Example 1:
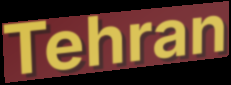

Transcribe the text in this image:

Tehran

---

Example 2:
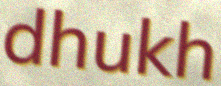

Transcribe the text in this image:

dhukh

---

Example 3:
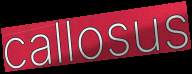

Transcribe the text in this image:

callosus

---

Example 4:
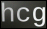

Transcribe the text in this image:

hcg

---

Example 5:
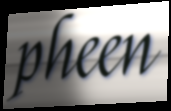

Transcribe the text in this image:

pheen